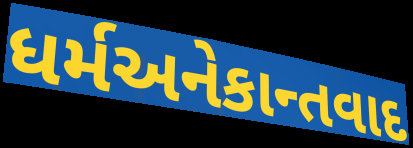
ધર્મઅનેકાન્તવાદ